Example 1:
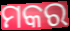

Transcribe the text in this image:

ମକର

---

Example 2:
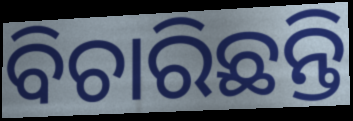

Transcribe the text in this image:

ବିଚାରିଛନ୍ତି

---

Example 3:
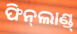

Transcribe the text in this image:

ଫିନ୍‌ଲାଣ୍ଡ୍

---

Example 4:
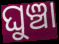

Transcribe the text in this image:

ଘୁଞ୍ଚା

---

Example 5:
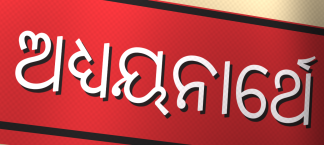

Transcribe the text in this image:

ଅଧ୍ୟୟନାର୍ଥେ